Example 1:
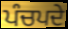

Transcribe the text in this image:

ਪੰਚਪਦੇ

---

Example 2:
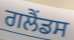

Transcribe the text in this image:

ਗਲੈਂਡਸ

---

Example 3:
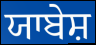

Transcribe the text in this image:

ਯਾਬੇਸ਼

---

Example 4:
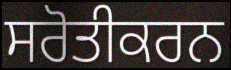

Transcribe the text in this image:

ਸਰੋਤੀਕਰਨ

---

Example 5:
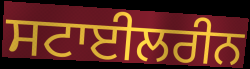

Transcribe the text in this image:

ਸਟਾਈਲਰੀਨ